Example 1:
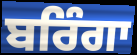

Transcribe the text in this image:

ਬਰਿੰਗਾ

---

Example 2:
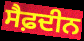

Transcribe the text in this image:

ਸੈਫ਼ਦੀਨ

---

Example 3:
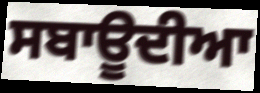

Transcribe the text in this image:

ਸਬਾਊਦੀਆ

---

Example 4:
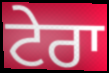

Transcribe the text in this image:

ਟੇਰਾ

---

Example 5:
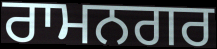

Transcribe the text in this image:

ਰਾਮਨਗਰ